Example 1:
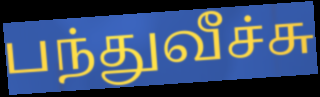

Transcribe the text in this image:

பந்துவீச்சு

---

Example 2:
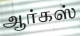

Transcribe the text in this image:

ஆர்கஸ்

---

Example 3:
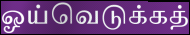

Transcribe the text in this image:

ஓய்வெடுக்கத்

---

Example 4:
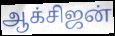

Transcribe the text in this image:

ஆக்சிஜன்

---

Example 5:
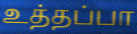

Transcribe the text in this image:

உத்தப்பா